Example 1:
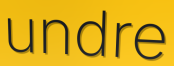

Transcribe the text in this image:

undre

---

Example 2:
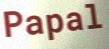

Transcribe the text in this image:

Papal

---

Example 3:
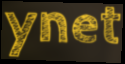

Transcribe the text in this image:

ynet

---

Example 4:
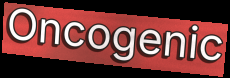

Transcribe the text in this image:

Oncogenic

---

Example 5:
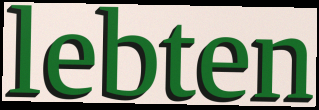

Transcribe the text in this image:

lebten